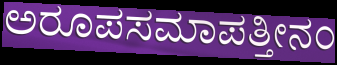
ಅರೂಪಸಮಾಪತ್ತೀನಂ